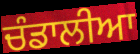
ਚੰਡਾਲੀਆ